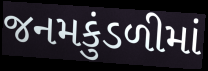
જનમકુંડળીમાં